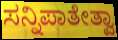
ಸನ್ನಿಪಾತೇತ್ವಾ